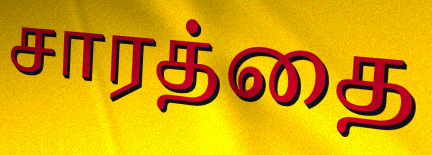
சாரத்தை